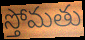
స్తోమతు